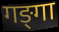
गङ्गा